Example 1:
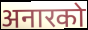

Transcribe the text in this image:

अनारको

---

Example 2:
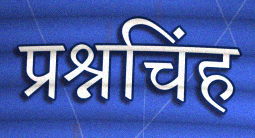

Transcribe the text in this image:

प्रश्नचिंह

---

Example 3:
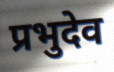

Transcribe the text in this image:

प्रभुदेव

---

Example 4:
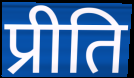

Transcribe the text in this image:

प्रीति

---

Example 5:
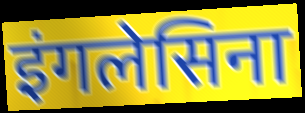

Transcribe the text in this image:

इंगलेसिना